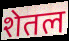
शेतल